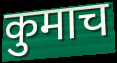
कुमाच